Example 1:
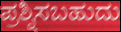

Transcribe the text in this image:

ಪ್ರಶ್ನಿಸಬಹುದು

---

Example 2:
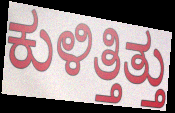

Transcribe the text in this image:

ಕುಳಿತ್ತಿತ್ತು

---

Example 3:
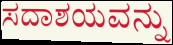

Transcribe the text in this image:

ಸದಾಶಯವನ್ನು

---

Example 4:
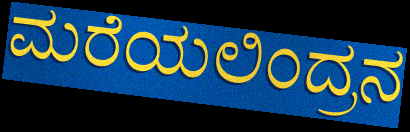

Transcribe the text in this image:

ಮರೆಯಲಿಂದ್ರನ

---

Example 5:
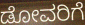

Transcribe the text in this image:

ಡೋವರಿಗೆ